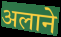
अलाने